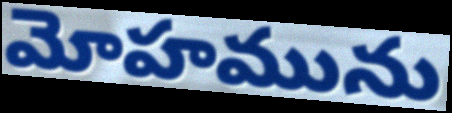
మోహమును